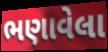
ભણાવેલા